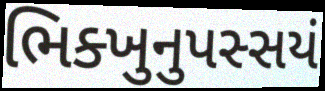
ભિક્ખુનુપસ્સયં